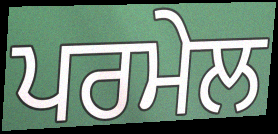
ਪਰਮੇਲ